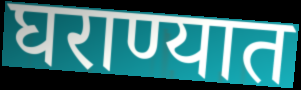
घराण्यात